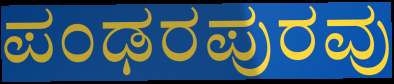
ಪಂಢರಪುರವು